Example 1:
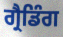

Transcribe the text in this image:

ਗ੍ਰੈਡਿੰਗ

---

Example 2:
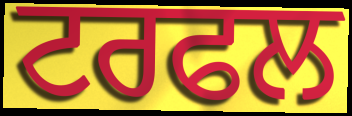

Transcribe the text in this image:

ਟਰਫਲ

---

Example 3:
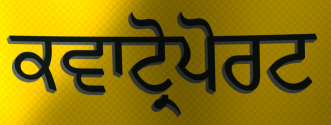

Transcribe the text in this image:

ਕਵਾਟ੍ਰੋਪੋਰਟ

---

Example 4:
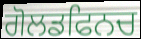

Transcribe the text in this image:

ਗੋਲਡਫਿਨਚ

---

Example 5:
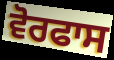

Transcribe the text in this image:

ਵੋਰਫਾਸ